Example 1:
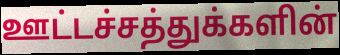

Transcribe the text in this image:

ஊட்டச்சத்துக்களின்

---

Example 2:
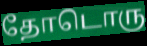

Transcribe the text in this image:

தோடொரு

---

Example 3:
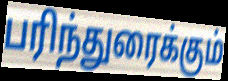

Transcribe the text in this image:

பரிந்துரைக்கும்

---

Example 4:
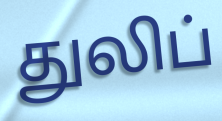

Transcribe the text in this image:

துலிப்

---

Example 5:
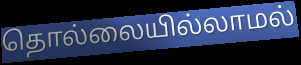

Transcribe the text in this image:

தொல்லையில்லாமல்